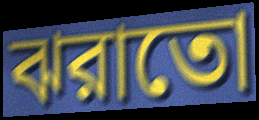
ঝরাতো